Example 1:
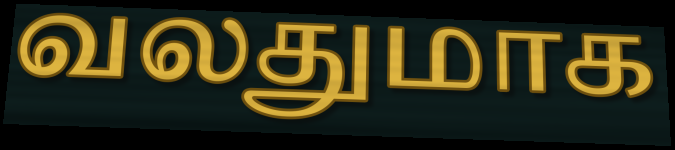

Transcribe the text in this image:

வலதுமாக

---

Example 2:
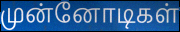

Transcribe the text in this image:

முன்னோடிகள்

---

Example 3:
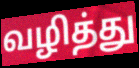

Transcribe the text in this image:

வழித்து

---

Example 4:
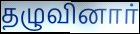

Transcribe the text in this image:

தழுவினார்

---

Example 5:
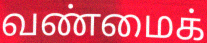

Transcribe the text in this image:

வண்மைக்